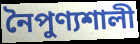
নৈপুণ্যশালী